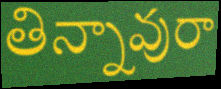
తిన్నావురా